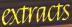
extracts